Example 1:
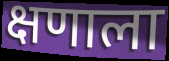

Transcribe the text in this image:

क्षणाला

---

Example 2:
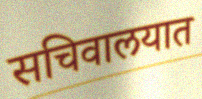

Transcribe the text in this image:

सचिवालयात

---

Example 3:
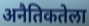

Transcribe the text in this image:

अनैतिकतेला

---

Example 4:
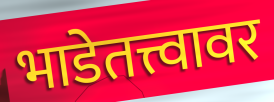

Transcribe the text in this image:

भाडेतत्त्वावर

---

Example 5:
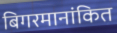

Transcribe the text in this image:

बिगरमानांकित